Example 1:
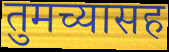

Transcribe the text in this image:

तुमच्यासह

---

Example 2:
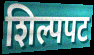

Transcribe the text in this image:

शिल्पपट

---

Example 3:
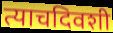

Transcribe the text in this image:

त्याचदिवशी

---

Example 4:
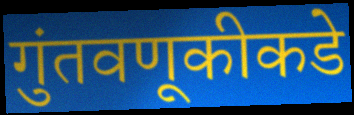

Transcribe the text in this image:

गुंतवणूकीकडे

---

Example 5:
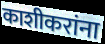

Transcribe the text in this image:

काशीकरांना